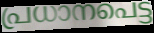
പ്രധാനപെട്ട